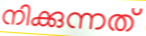
നിക്കുന്നത്